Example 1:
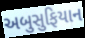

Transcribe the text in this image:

અબુસુફિયાન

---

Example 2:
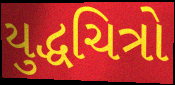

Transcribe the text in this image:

યુદ્ધચિત્રો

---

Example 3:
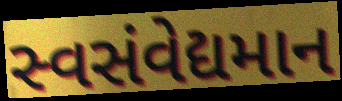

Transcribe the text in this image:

સ્વસંવેદ્યમાન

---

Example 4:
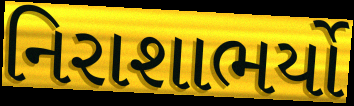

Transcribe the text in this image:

નિરાશાભર્યો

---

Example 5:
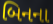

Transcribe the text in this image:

બિનના